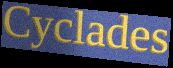
Cyclades